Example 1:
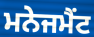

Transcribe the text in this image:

ਮਨੇਜਮੈਂਟ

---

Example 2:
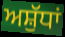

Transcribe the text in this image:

ਅਸ਼ੁੱਧਾਂ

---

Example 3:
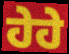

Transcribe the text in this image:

ਹੇਹੇ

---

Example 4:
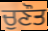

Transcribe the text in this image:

ਚੁਣੌਤ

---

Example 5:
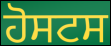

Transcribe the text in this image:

ਹੋਸਟਸ